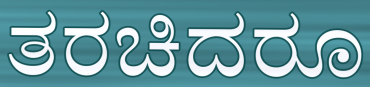
ತರಚಿದರೂ